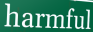
harmful